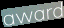
award